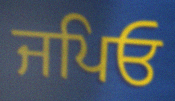
ਜਪਿਓ